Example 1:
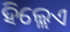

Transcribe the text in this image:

ହିଲ୍ଲେଏ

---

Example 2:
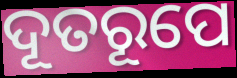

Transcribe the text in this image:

ଦୂତରୂପେ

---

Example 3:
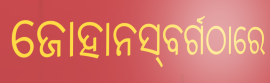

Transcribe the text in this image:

ଜୋହାନସ୍‌ବର୍ଗଠାରେ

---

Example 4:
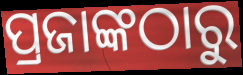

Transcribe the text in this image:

ପ୍ରଜାଙ୍କଠାରୁ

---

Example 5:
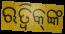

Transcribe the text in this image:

ଋତ୍ୱିକ୍‌ଙ୍କ